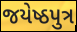
જયેષ્ઠપુત્ર